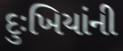
દુઃખિયાંની